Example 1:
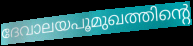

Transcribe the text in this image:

ദേവാലയപൂമുഖത്തിന്റെ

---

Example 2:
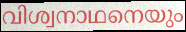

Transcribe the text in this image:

വിശ്വനാഥനെയും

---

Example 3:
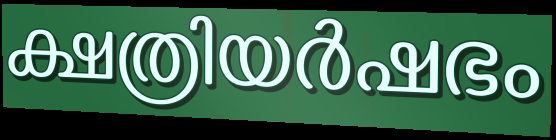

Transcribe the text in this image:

ക്ഷത്രിയർഷഭം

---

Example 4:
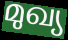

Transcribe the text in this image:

മുഖ്യ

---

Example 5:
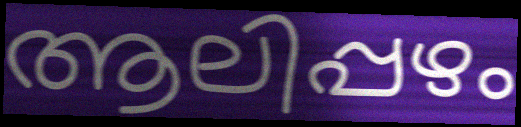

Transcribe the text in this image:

ആലിപ്പഴം